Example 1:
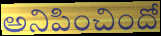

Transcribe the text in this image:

అనిపించిందో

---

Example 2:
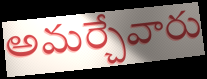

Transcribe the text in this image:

అమర్చేవారు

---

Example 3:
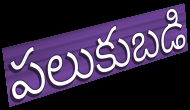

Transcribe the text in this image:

పలుకుబడి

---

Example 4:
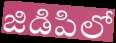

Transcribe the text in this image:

జిడిపిలో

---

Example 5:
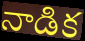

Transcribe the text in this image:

నాడిక